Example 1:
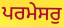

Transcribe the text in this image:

ਪਰਮੇਸਰੁ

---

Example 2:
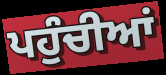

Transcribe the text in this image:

ਪਹੁੰਚੀਆਂ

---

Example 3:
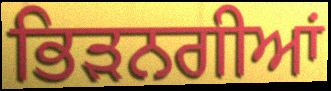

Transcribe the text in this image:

ਭਿੜਨਗੀਆਂ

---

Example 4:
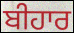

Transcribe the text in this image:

ਬੀਹਾਰ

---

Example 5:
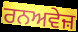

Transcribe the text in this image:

ਰਨਅਵੇਜ਼